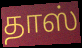
தாஸ்